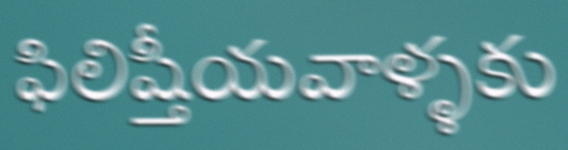
ఫిలిష్తీయవాళ్ళకు